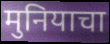
मुनियाचा